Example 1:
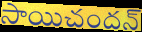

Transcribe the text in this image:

సాయిచందన్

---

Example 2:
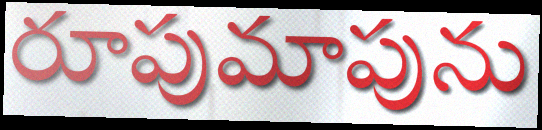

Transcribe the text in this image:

రూపుమాపును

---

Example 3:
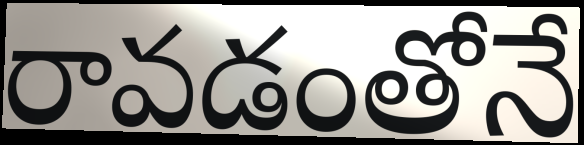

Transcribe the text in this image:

రావడంతోనే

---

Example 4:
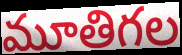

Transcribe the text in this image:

మూతిగల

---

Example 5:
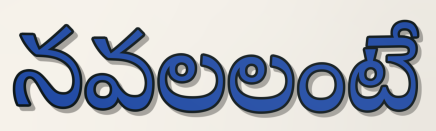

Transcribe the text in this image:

నవలలంటే